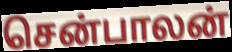
சென்பாலன்